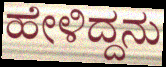
ಹೇಳಿದ್ದನು